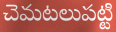
చెమటలుపట్టి